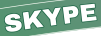
SKYPE